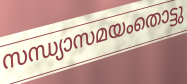
സന്ധ്യാസമയംതൊട്ടു